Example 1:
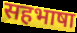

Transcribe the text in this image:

सहभाषा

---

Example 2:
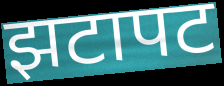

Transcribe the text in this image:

झटापट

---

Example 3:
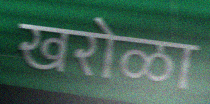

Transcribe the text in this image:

खरोळा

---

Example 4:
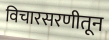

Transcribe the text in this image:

विचारसरणीतून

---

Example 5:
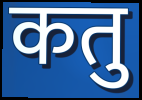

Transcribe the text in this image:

कतु